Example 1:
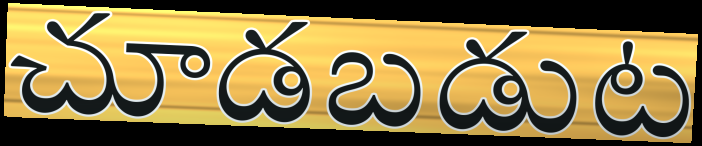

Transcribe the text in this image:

చూడబడుట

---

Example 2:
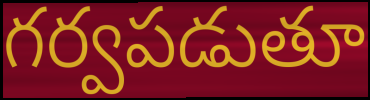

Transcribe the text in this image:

గర్వపడుతూ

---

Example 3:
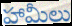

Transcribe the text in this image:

హామీలు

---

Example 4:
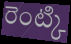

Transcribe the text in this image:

రెంట్కి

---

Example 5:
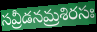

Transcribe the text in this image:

సవ్రీడనమ్రశిరసః